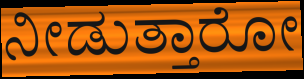
ನೀಡುತ್ತಾರೋ